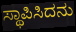
ಸ್ಥಾಪಿಸಿದನು